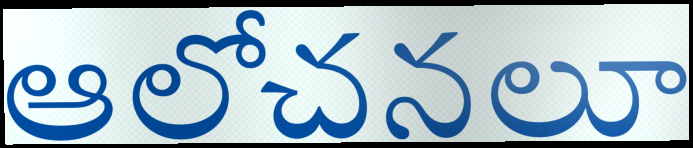
ఆలోచనలూ